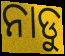
ନାଡୁ